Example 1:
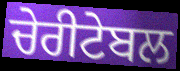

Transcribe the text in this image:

ਚੇਰੀਟੇਬਲ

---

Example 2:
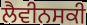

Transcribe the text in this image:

ਲੈਵੀਨਸਕੀ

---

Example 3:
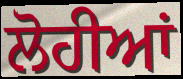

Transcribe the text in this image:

ਲੋਹੀਆਂ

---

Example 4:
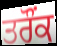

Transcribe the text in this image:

ਤਰੌਂਕ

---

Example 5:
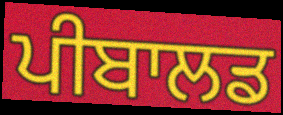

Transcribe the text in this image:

ਪੀਬਾਲਡ